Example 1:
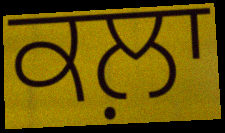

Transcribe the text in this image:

ਕਲ਼ਾ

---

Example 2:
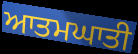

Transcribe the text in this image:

ਆਤਮਘਾਤੀ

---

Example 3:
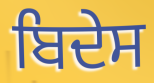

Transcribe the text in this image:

ਬਿਦੇਸ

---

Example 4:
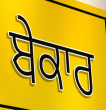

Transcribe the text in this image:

ਬੇਕਾਰ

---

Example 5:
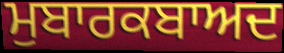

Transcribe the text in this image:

ਮੁਬਾਰਕਬਾਅਦ